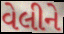
વેલીને